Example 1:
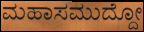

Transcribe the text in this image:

ಮಹಾಸಮುದ್ದೋ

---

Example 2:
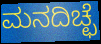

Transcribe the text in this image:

ಮನದಿಚ್ಛೆ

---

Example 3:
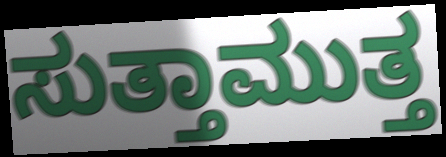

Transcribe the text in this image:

ಸುತ್ತಾಮುತ್ತ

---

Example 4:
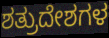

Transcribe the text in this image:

ಶತ್ರುದೇಶಗಳ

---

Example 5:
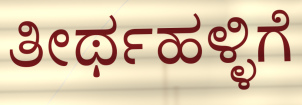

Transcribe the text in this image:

ತೀರ್ಥಹಳ್ಳಿಗೆ